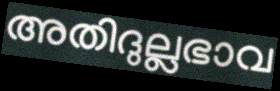
അതിദുല്ലഭാവ